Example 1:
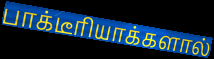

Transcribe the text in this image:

பாக்டீரியாக்களால்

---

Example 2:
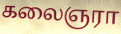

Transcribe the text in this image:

கலைஞரா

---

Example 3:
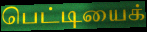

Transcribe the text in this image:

பெட்டியைக்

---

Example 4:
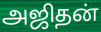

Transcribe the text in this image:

அஜிதன்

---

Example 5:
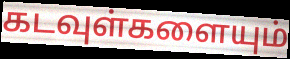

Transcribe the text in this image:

கடவுள்களையும்